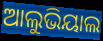
ଆଲୁଭିୟାଲ